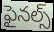
ఫైనల్స్